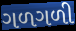
ગળગળી